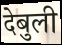
देबुली